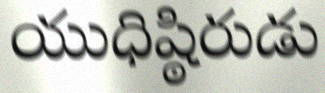
యుధిష్ఠిరుడు